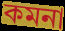
কমনা